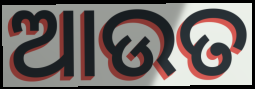
ଆଉତ